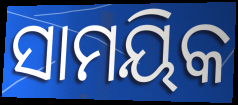
ସାମୟିକ